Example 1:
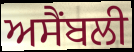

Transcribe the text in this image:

ਅਸੈਂਬਲੀ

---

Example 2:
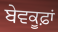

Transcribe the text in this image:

ਬੇਵਕੂਫ਼ਾਂ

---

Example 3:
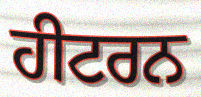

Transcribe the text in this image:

ਹੀਟਰਨ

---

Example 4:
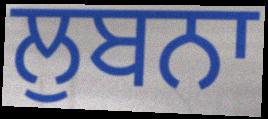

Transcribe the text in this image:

ਲੁਬਨਾ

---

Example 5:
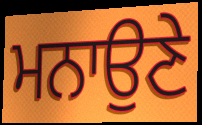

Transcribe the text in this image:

ਮਨਾਉਣੇ